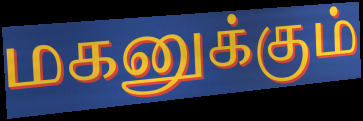
மகனுக்கும்